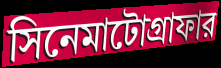
সিনেমাটোগ্রাফার